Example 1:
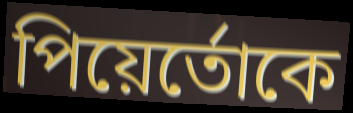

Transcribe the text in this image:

পিয়ের্তোকে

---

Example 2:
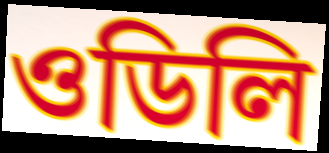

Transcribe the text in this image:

ওডিলি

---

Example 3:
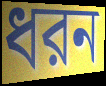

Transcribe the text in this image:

ধরন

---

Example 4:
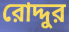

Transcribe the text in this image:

রোদ্দুর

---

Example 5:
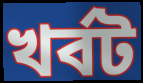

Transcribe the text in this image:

খর্বট